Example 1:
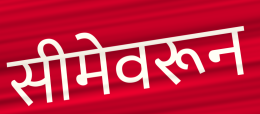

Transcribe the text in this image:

सीमेवरून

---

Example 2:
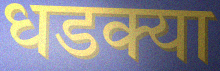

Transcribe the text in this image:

धडक्या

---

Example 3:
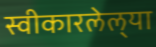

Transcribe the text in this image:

स्वीकारलेल्या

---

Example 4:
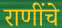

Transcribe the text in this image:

राणींचे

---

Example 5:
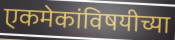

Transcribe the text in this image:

एकमेकांविषयीच्या